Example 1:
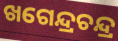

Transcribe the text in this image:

ଖଗେନ୍ଦ୍ରଚନ୍ଦ୍ର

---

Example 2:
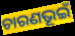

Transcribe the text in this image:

ଚାରଣଭୂଇଁ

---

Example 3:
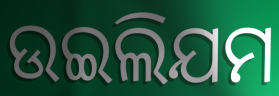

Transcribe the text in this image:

ଉଇଲିଯମ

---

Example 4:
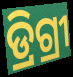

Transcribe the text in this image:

ଡ୍ରିଗ୍ରୀ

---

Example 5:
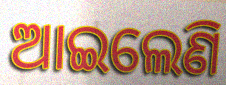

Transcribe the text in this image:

ଆଇଲେଣି